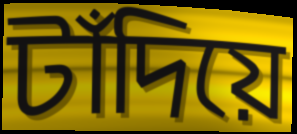
টাঁদিয়ে